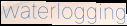
waterlogging